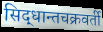
सिद्धान्तचक्रवर्ती